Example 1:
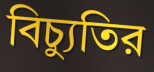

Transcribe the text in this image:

বিচ্যুতির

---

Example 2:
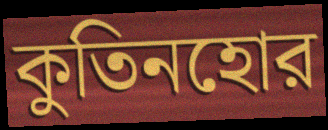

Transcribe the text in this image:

কুতিনহোর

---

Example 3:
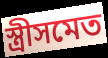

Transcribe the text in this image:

স্ত্রীসমেত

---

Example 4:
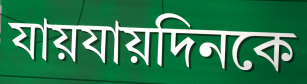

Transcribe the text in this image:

যায়যায়দিনকে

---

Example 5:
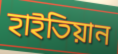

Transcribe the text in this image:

হাইতিয়ান